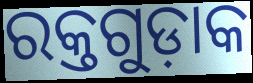
ରକ୍ତଗୁଡ଼ାକ